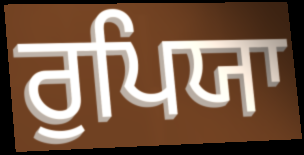
ਰੁਪਿਯਾ